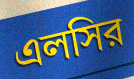
এলসির